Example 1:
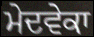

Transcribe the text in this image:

ਮੇਦਵੇਕਾ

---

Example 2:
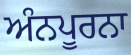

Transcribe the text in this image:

ਅੰਨਪੂਰਨਾ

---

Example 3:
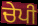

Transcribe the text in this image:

ਚੇਪੀ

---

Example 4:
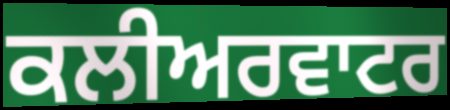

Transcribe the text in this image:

ਕਲੀਅਰਵਾਟਰ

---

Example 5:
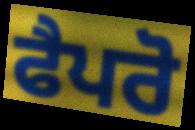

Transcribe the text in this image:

ਫੈਪਰੋ